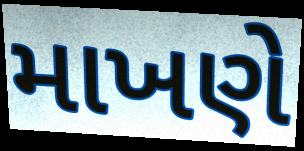
માખણે